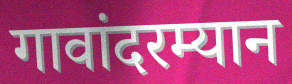
गावांदरम्यान